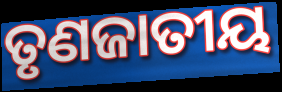
ତୃଣଜାତୀୟ